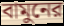
বামুনের